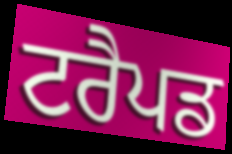
ਟਰੈਪਡ